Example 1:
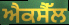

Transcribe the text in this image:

ਐਕਸੈੱਲ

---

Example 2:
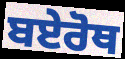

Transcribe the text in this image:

ਬਏਰੋਥ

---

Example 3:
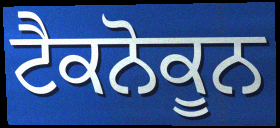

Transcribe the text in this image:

ਟੈਕਨੋਕੂਨ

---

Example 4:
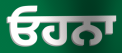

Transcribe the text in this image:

ਓਹਨਾ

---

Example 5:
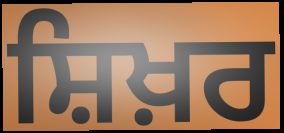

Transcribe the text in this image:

ਸ਼ਿਖ਼ਰ